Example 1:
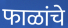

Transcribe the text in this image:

फाळांचे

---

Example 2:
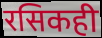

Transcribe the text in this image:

रसिकही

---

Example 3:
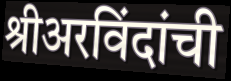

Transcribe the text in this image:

श्रीअरविंदांची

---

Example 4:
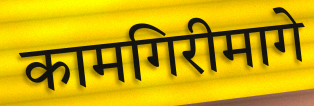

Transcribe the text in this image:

कामगिरीमागे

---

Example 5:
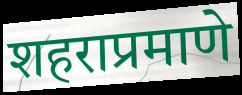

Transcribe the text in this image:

शहराप्रमाणे